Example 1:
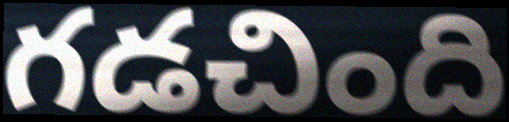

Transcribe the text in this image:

గడచింది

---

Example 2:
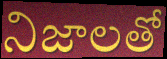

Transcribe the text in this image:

నిజాలతో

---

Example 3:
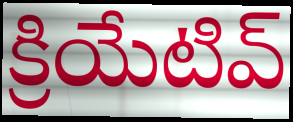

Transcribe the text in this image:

క్రియేటివ్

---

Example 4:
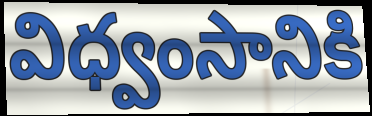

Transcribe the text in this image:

విధ్వంసానికి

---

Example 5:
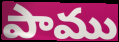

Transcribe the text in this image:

పాము